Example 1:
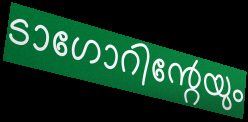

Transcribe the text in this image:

ടാഗോറിന്റേയും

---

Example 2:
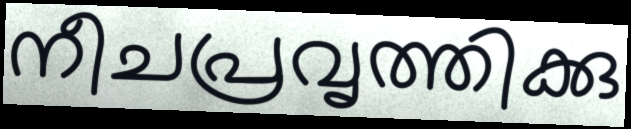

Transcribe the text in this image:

നീചപ്രവൃത്തിക്കു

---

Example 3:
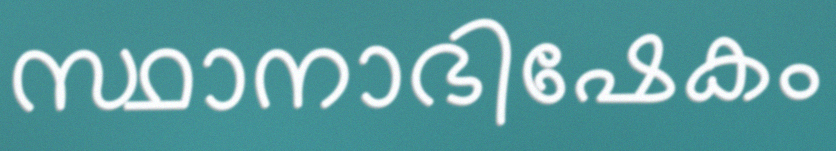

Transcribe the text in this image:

സ്ഥാനാഭിഷേകം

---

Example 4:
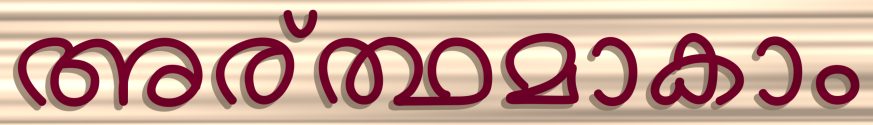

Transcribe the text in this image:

അര്ത്ഥമാകാം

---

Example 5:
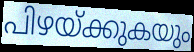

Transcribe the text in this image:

പിഴയ്ക്കുകയും